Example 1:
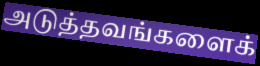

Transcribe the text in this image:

அடுத்தவங்களைக்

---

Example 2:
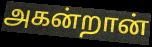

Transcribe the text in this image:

அகன்றான்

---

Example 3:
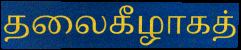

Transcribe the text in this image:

தலைகீழாகத்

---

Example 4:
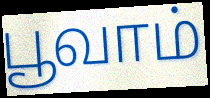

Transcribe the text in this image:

பூவாம்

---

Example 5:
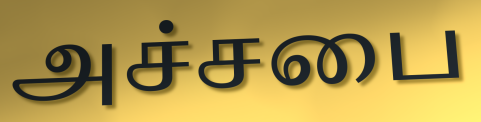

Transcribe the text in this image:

அச்சபை